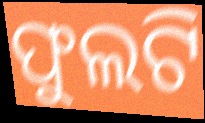
ଫୁଲଟି